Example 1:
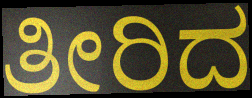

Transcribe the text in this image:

ತೀರಿದ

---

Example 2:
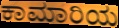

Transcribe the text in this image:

ಕಾಮಾರಿಯ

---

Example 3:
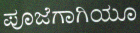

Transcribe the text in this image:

ಪೂಜೆಗಾಗಿಯೂ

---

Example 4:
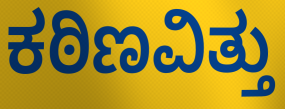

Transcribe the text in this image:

ಕಠಿಣವಿತ್ತು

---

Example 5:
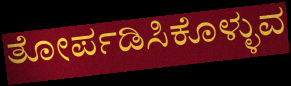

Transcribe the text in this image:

ತೋರ್ಪಡಿಸಿಕೊಳ್ಳುವ